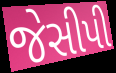
જેસીપી